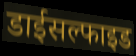
डाईसल्फाइड